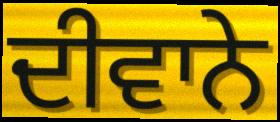
ਦੀਵਾਨੇ